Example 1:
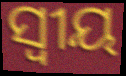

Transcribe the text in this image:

ସ୍ୱୀୟ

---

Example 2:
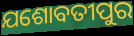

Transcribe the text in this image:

ଯଶୋବତୀପୁର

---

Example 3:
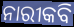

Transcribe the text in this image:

ନାରୀକବି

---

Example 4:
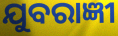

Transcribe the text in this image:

ଯୁବରାଜ୍ଞୀ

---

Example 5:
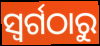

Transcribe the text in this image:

ସ୍ଵର୍ଗଠାରୁ